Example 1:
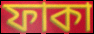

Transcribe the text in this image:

ফাকা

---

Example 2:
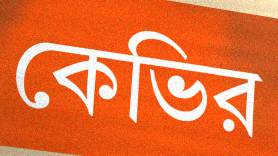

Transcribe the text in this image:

কেভির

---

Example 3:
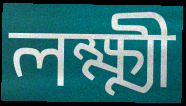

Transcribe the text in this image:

লক্ষ্মী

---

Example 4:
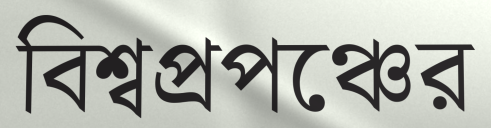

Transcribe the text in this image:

বিশ্বপ্রপঞ্চের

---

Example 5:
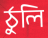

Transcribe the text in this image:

ঠুলি